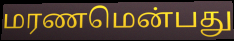
மரணமென்பது